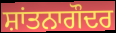
ਸ਼ਾਂਤਨਾਗੌਦਰ